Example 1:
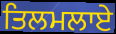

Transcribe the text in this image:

ਤਿਲਮਲਾਏ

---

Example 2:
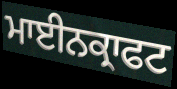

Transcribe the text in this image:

ਮਾਈਨਕ੍ਰਾਫਟ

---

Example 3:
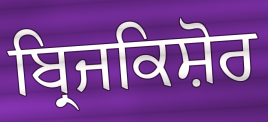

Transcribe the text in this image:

ਬ੍ਰਿਜਕਿਸ਼ੋਰ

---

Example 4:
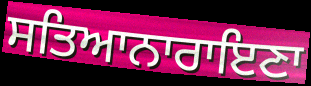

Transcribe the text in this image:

ਸਤਿਆਨਾਰਾਇਣਾ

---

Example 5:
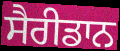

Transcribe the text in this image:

ਸੈਰੀਡਾਨ